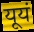
यूयं